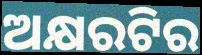
ଅକ୍ଷରଟିର